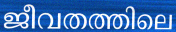
ജീവതത്തിലെ